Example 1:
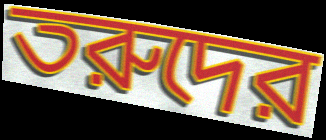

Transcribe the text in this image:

তরুদের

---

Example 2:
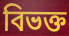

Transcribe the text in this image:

বিভক্ত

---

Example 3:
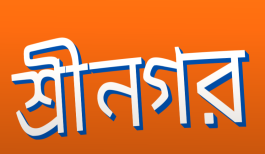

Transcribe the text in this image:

শ্রীনগর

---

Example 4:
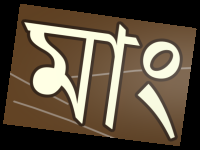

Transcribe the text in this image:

মাং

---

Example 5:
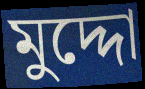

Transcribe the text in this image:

মুদ্দো